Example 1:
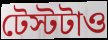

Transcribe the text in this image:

টেস্টটাও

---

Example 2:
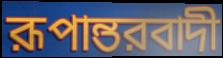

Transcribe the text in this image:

রূপান্তরবাদী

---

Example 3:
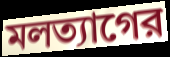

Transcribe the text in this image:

মলত্যাগের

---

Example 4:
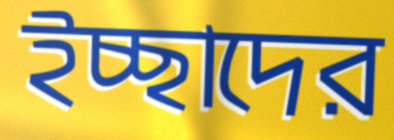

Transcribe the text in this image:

ইচ্ছাদের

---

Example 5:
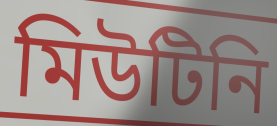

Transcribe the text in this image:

মিউটিনি